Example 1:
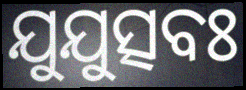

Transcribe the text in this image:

ଯୁଯୁତ୍ସବଃ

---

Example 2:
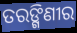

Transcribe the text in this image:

ତରଙ୍ଗିଣୀର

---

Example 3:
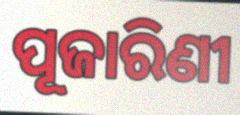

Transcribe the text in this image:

ପୂଜାରିଣୀ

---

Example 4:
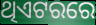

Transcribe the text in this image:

ଥିଏଟରରେ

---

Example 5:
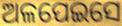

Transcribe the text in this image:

ଅଳପେଇସେ